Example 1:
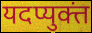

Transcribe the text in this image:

यदप्युक्तं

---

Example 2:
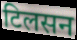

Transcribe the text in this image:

टिलसन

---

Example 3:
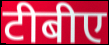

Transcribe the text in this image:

टीबीए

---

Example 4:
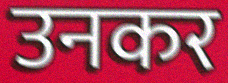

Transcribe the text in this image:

उनकर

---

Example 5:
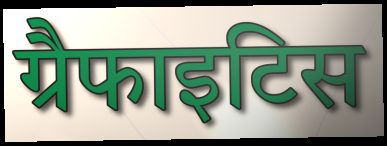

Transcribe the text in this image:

ग्रैफाइटिस